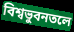
বিশ্বভুবনতলে